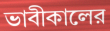
ভাবীকালের